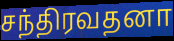
சந்திரவதனா